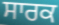
ਸਾਰਕ